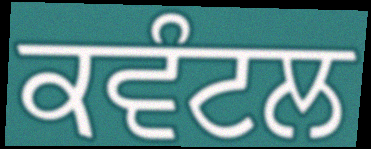
ਕਵੰਟਲ